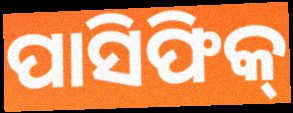
ପାସିଫିକ୍